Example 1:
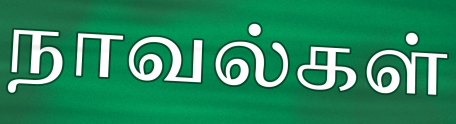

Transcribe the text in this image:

நாவல்கள்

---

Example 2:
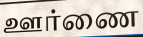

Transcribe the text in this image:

ஊர்ணை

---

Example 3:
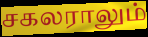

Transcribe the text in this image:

சகலராலும்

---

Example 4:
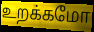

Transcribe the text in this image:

உறக்கமோ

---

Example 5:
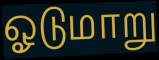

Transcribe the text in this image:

ஓடுமாறு